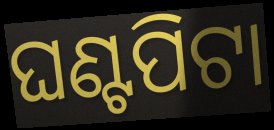
ଘଣ୍ଟପିଟା